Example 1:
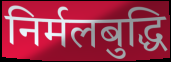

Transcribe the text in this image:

निर्मलबुद्धि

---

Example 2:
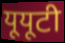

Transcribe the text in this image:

यूयूटी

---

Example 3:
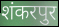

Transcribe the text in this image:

शंकरपुर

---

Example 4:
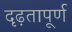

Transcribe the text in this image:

दृढ़तापूर्ण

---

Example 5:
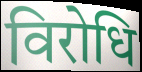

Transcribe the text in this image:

विरोधि